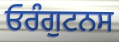
ਓਰੰਗੁਟਨਸ